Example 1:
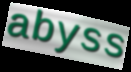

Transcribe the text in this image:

abyss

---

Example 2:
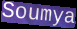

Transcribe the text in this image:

Soumya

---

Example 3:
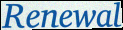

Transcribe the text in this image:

Renewal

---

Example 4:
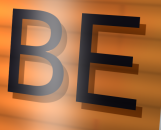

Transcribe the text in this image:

BE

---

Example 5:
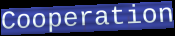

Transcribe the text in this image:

Cooperation